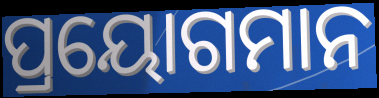
ପ୍ରୟୋଗମାନ